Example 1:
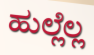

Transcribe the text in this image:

ಹುಲ್ಲೆಲ್ಲ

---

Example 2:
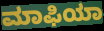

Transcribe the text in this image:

ಮಾಫಿಯಾ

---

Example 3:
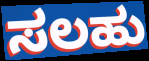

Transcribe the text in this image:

ಸಲಹು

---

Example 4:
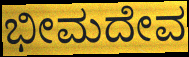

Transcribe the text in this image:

ಭೀಮದೇವ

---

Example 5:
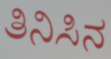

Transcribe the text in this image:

ತಿನಿಸಿನ